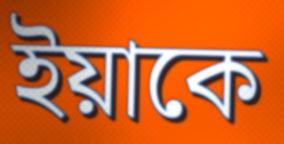
ইয়াকে